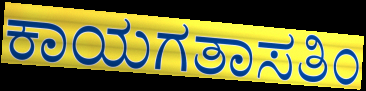
ಕಾಯಗತಾಸತಿಂ